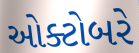
ઓક્ટોબરે